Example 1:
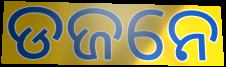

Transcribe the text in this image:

ଡଜନେ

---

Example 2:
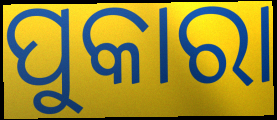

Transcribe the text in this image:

ପୁକାରା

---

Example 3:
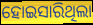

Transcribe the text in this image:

ହୋଇସାରିଥିଲା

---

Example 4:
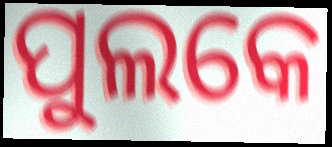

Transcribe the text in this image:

ପୁଲକେ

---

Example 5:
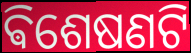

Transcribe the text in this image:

ଵିଶେଷଣଟି